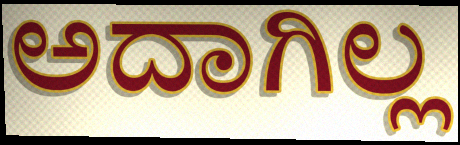
ಅದಾಗಿಲ್ಲ